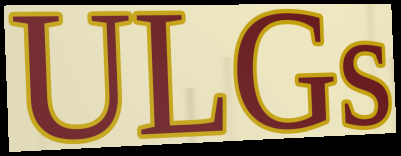
ULGs